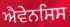
ਐਵੇਨਸਿਸ